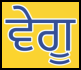
ਵੇਗੂ